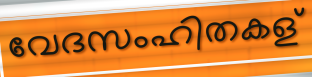
വേദസംഹിതകള്